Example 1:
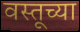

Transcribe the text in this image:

वस्तूच्या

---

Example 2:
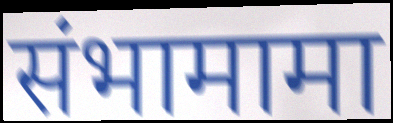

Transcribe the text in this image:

संभामामा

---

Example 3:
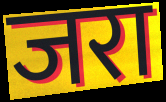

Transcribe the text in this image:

जरा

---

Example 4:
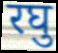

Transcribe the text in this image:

रघु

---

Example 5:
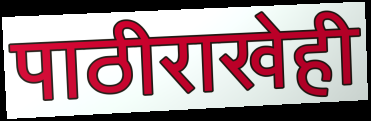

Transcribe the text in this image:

पाठीराखेही